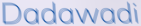
Dadawadi